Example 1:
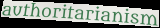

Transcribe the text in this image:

authoritarianism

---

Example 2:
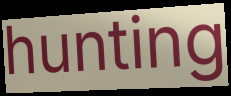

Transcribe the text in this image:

hunting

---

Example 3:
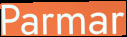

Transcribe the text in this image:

Parmar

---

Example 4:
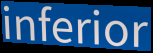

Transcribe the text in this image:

inferior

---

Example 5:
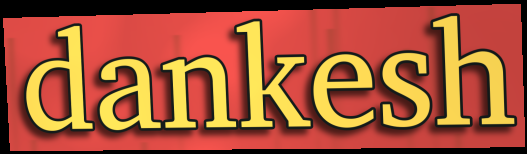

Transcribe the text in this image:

dankesh